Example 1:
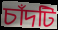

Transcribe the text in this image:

চাঁদটি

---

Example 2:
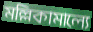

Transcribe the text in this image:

মল্লিকামাল্যে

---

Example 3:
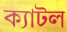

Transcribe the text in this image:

ক্যাটল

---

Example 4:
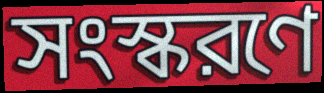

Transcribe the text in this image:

সংস্করণে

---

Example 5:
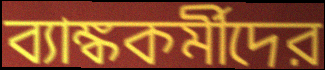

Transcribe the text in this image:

ব্যাঙ্ককর্মীদের